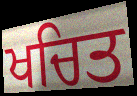
ਖਚਿਤ